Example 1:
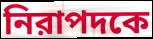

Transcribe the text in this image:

নিরাপদকে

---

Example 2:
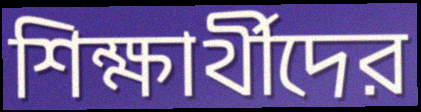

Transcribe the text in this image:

শিক্ষার্থীদের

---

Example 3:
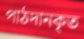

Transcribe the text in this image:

পাঠদানকৃত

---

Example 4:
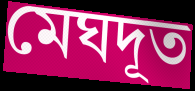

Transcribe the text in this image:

মেঘদূত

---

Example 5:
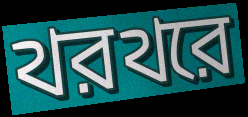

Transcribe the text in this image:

থরথরে